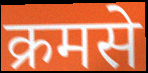
क्रमसे